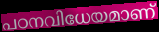
പഠനവിധേയമാണ്